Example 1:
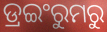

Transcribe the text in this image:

ଡ୍ରଇଂରୁମରୁ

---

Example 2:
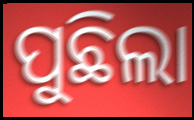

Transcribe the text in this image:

ପୁଛିଲା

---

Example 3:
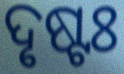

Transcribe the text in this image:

ଦୃଷ୍ଟଃ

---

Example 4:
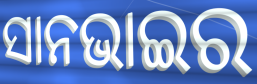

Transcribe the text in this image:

ସାନଭାଇର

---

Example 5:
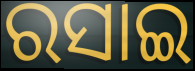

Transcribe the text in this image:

ରସାଇ